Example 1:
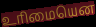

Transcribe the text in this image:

உரிமையென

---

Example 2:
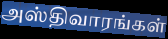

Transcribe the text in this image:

அஸ்திவாரங்கள்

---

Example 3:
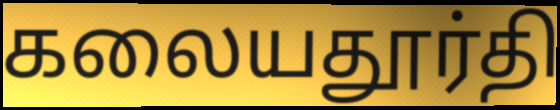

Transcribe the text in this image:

கலையதூர்தி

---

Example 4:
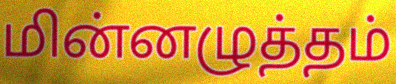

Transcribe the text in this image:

மின்னழுத்தம்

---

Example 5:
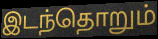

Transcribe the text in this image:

இடந்தொறும்